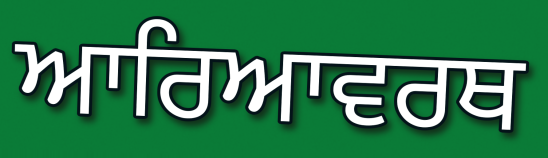
ਆਰਿਆਵਰਥ